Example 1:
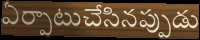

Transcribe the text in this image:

ఏర్పాటుచేసినప్పుడు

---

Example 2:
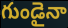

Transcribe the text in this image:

గుండైనా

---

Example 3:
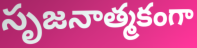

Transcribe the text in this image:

సృజనాత్మకంగా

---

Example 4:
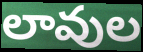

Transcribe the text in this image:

లావుల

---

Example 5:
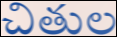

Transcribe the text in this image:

చితుల